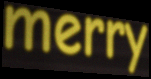
merry